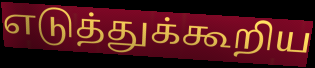
எடுத்துக்கூறிய